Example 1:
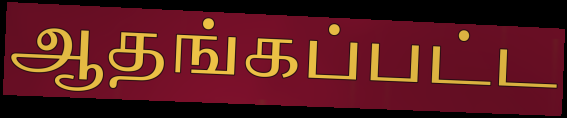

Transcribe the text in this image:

ஆதங்கப்பட்ட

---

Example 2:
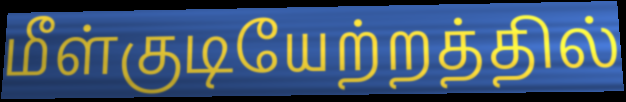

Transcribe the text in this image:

மீள்குடியேற்றத்தில்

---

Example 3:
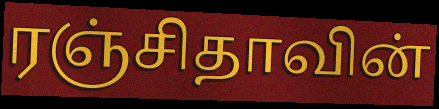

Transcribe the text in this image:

ரஞ்சிதாவின்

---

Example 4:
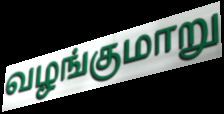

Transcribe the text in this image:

வழங்குமாறு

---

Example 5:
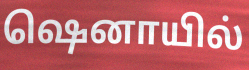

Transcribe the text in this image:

ஷெனாயில்